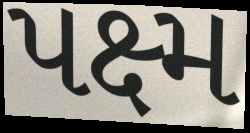
પક્ષ્મ